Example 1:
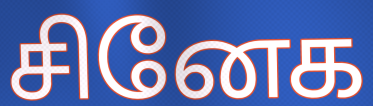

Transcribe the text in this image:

சினேக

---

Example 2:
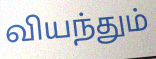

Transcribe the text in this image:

வியந்தும்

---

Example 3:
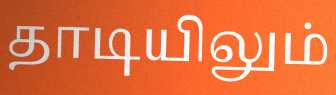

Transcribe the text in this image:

தாடியிலும்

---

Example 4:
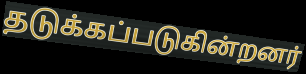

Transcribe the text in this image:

தடுக்கப்படுகின்றனர்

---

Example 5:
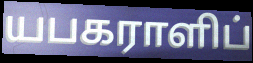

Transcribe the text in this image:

யபகராளிப்